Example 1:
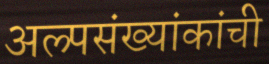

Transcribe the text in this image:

अल्पसंख्यांकांची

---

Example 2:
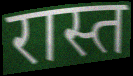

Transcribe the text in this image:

रास्त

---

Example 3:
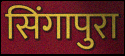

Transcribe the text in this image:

सिंगापुरा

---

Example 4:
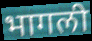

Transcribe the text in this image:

भागली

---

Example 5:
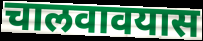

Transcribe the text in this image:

चालवावयास